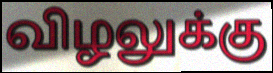
விழலுக்கு